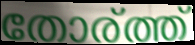
തോര്ത്ത്